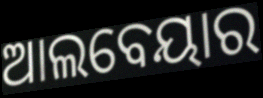
ଆଲବେୟାର